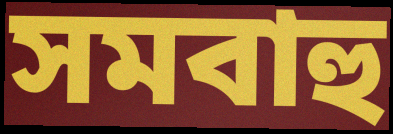
সমবাহু